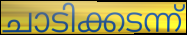
ചാടിക്കടന്ന്